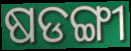
ଷଡଙ୍ଗୀ